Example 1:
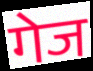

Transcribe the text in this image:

गेज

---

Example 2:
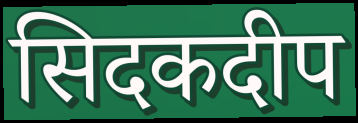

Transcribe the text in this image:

सिदकदीप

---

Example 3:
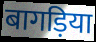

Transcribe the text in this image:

बागड़िया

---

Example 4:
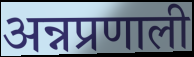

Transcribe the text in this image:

अन्नप्रणाली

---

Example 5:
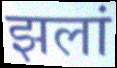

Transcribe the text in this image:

झलां